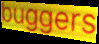
buggers